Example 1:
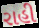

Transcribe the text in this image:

રાહી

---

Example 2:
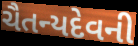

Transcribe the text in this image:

ચૈતન્યદેવની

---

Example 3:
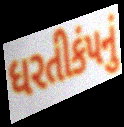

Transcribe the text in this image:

ધરતીકંપનું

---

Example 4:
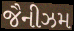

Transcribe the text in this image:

જૈનીઝમ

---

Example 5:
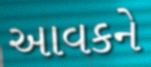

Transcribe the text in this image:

આવકને